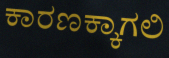
ಕಾರಣಕ್ಕಾಗಲಿ